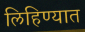
लिहिण्यात